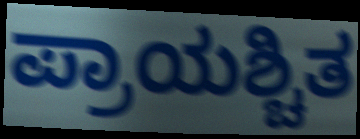
ಪ್ರಾಯಶ್ಚಿತ